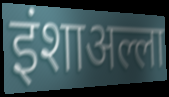
इंशाअल्ला